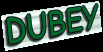
DUBEY